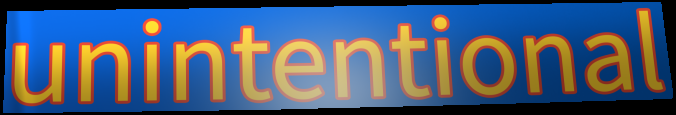
unintentional